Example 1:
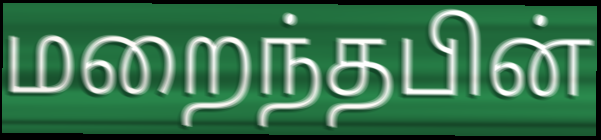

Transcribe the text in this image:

மறைந்தபின்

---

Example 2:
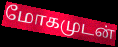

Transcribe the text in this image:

மோகமுடன்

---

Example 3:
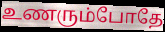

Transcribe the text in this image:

உணரும்போதே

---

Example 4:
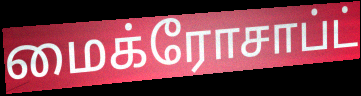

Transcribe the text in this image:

மைக்ரோசாப்ட்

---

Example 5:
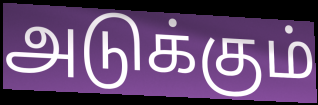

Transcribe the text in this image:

அடுக்கும்